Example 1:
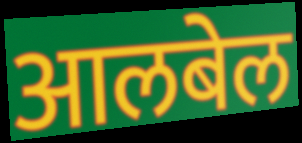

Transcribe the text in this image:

आलबेल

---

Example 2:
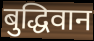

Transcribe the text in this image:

बुद्धिवान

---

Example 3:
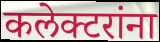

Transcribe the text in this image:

कलेक्टरांना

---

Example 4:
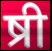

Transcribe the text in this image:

ष्री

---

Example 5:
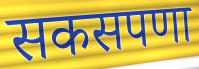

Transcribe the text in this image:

सकसपणा